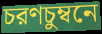
চরণচুম্বনে